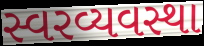
સ્વરવ્યવસ્થા